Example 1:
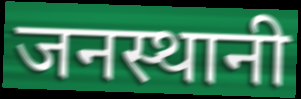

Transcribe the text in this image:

जनस्थानी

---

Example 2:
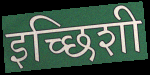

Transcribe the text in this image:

इच्छिशी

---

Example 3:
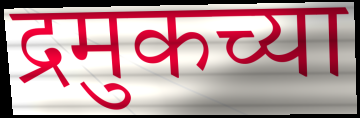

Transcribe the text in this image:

द्रमुकच्या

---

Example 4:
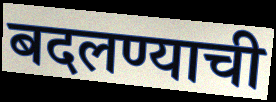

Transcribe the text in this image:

बदलण्याची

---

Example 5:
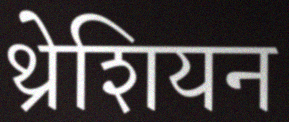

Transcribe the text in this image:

थ्रेशियन